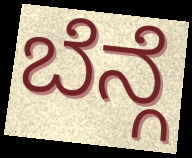
ಬೆನ್ಗೆ